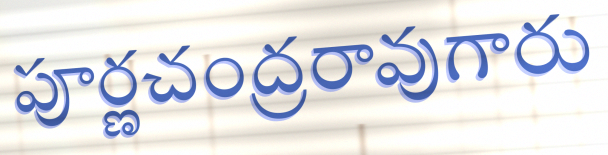
పూర్ణచంద్రరావుగారు